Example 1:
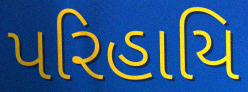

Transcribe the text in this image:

પરિહાયિ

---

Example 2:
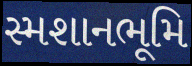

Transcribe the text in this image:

સ્મશાનભૂમિ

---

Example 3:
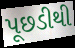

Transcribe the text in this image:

પૂછડીથી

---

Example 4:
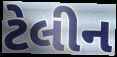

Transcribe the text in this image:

ટેલીન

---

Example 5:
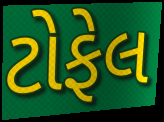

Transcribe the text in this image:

ટોફેલ